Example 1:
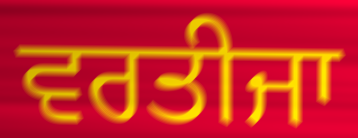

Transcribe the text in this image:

ਵਰਤੀਜਾ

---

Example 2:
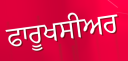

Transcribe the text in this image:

ਫਾਰੂਖਸੀਅਰ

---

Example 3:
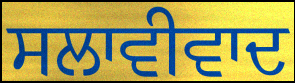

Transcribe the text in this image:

ਸਲਾਵੀਵਾਦ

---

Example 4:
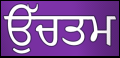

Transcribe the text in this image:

ਉੱਚਤਮ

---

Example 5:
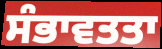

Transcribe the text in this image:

ਸੰਭਾਵਤਤਾ